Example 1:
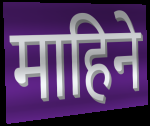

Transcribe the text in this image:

माहिने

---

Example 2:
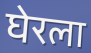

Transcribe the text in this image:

घेरला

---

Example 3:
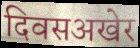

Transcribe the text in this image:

दिवसअखेर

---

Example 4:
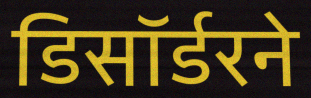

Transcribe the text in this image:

डिसॉर्डरने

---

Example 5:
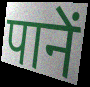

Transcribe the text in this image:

पानें